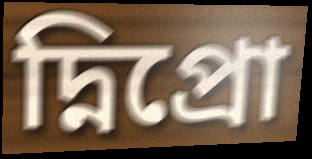
দ্নিপ্রো